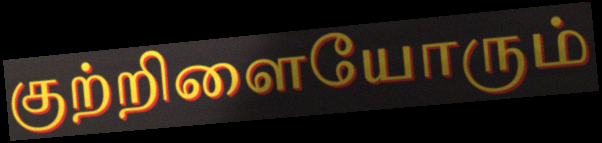
குற்றிளையோரும்